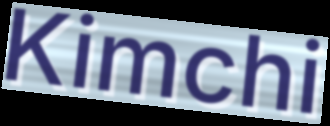
Kimchi